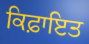
ਕਿਫ਼ਾਇਤ